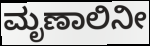
ಮೃಣಾಲಿನೀ